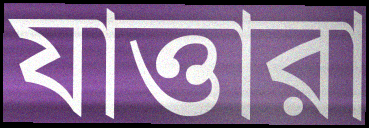
যাত্তারা